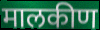
मालकीण